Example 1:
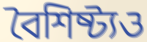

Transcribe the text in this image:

বৈশিষ্ট্যও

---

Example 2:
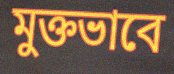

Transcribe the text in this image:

মুক্তভাবে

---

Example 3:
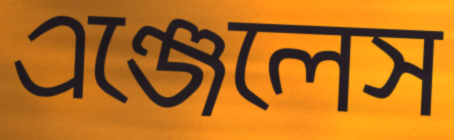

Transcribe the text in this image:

এঞ্জেলেস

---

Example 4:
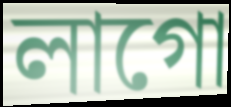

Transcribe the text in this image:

লাগো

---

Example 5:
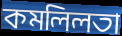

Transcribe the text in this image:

কমলিলতা